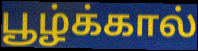
பூழ்க்கால்